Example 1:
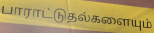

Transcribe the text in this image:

பாராட்டுதல்களையும்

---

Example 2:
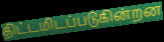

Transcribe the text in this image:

திட்டமிடப்படுகின்றன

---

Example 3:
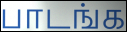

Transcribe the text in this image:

பாடங்க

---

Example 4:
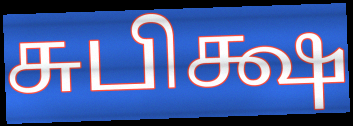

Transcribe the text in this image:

சுபிக்ஷ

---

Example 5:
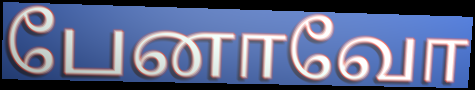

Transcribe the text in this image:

பேனாவோ